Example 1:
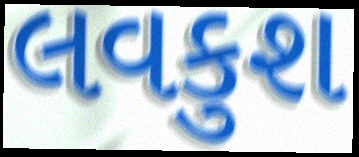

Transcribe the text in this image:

લવકુશ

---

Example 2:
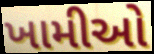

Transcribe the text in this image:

ખામીઓ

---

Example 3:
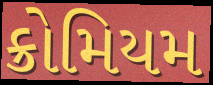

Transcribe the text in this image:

ક્રોમિયમ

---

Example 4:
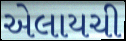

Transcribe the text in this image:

એલાયચી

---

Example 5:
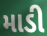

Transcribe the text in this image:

માડી